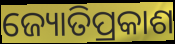
ଜ୍ୟୋତିପ୍ରକାଶ